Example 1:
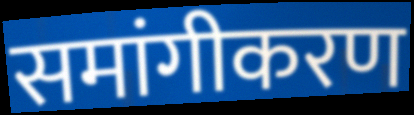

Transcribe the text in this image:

समांगीकरण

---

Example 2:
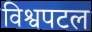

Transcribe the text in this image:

विश्वपटल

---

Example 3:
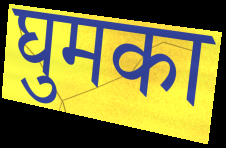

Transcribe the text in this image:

घुमका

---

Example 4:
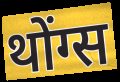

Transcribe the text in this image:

थोंग्स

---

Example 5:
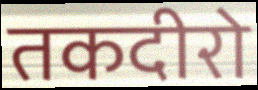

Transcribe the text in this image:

तकदीरो